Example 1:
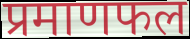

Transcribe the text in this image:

प्रमाणफल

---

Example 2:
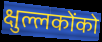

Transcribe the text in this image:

क्षुल्लकोंको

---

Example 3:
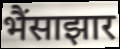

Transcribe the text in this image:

भैंसाझार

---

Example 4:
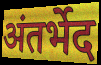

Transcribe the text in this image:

अंतर्भेद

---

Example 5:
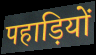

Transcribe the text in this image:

पहाड़ियों